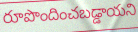
రూపొందించబడ్డాయని